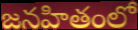
జనహితంలో